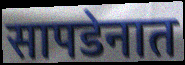
सापडेनात